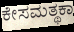
ಕೇಸಮತ್ಥಕಾ